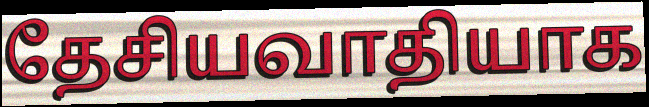
தேசியவாதியாக